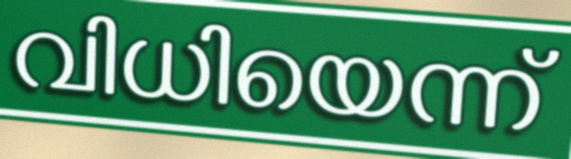
വിധിയെന്ന്